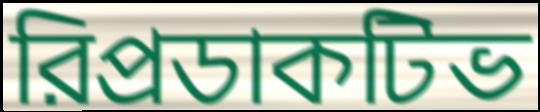
রিপ্রডাকটিভ